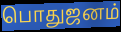
பொதுஜனம்